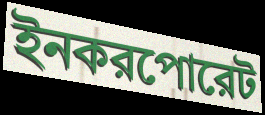
ইনকরপোরেট